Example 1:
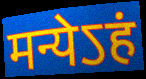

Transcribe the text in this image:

मन्येऽहं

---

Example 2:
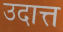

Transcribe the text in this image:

उदात्त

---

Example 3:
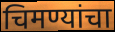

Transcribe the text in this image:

चिमण्यांचा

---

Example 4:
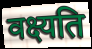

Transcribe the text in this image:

वक्ष्यति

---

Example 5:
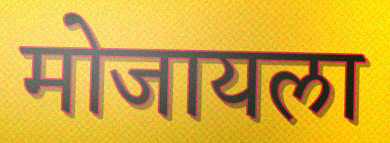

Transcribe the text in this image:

मोजायला